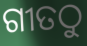
ଗୀତଠୁ